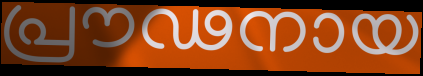
പ്രൗഢനായ